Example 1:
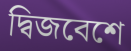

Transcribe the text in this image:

দ্বিজবেশে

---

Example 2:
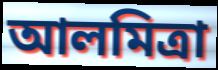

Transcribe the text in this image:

আলমিত্রা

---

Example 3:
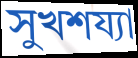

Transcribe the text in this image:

সুখশয্যা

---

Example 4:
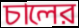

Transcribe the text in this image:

চালের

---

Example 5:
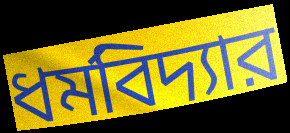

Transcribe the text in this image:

ধর্মবিদ্যার